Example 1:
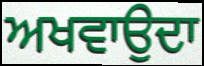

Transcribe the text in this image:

ਅਖਵਾਉਦਾ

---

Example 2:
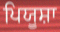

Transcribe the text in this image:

ਪਿਯੂਸ਼ਾ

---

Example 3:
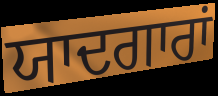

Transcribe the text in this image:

ਯਾਦਗਾਰਾਂ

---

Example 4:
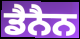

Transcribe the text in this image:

ਡੈਨੈਨ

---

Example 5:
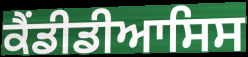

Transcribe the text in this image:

ਕੈਂਡੀਡੀਆਸਿਸ